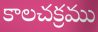
కాలచక్రము